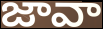
జావా